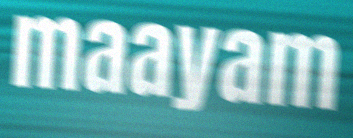
maayam